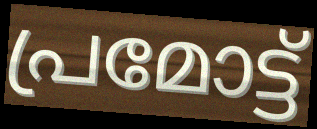
പ്രമോട്ട്